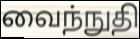
வைந்நுதி